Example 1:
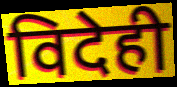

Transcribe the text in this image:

विदेही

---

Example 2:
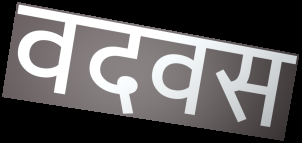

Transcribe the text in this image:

वदवस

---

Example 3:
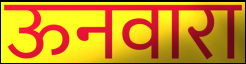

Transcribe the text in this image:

ऊनवारा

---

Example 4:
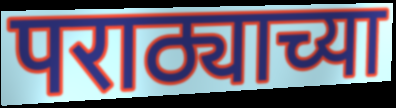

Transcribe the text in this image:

पराठ्याच्या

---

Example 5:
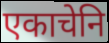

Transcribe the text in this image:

एकाचेनि